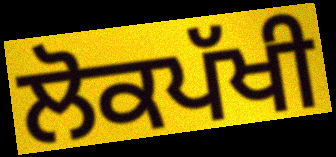
ਲੋਕਪੱਖੀ